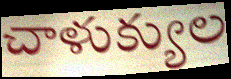
చాళుక్యుల